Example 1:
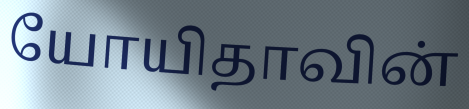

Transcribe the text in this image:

யோயிதாவின்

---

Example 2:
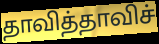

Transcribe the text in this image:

தாவித்தாவிச்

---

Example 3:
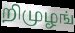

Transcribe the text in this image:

றிமுழங்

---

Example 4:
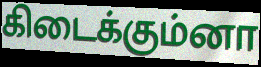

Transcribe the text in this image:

கிடைக்கும்னா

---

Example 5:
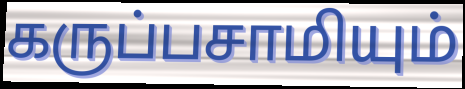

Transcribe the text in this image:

கருப்பசாமியும்